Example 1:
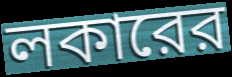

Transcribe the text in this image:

লকারের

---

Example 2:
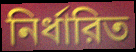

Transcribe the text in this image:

নির্ধারিত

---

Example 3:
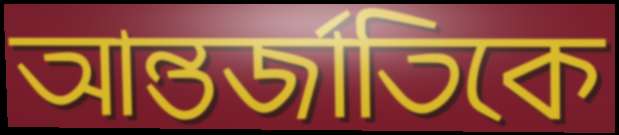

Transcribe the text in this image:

আন্তর্জাতিকে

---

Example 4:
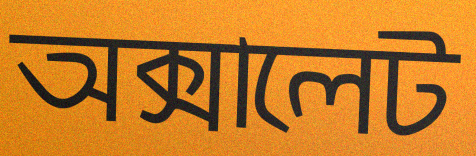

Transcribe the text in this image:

অক্সালেট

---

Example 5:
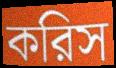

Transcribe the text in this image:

করিস